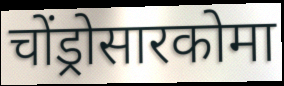
चोंड्रोसारकोमा